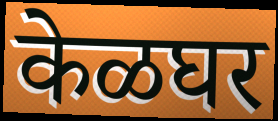
केळघर